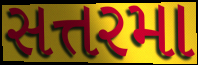
સત્તરમા